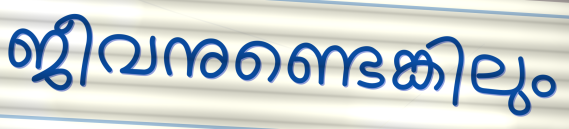
ജീവനുണ്ടെങ്കിലും